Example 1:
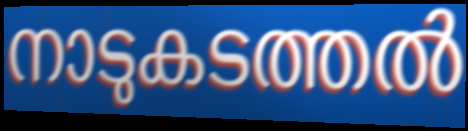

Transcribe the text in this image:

നാടുകടത്തൽ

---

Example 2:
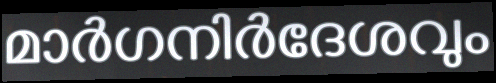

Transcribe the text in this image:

മാർഗനിർദേശവും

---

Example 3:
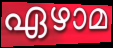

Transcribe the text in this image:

ഏഴാമ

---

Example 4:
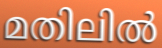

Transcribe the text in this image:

മതിലിൽ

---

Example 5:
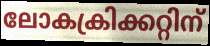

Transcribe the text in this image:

ലോകക്രിക്കറ്റിന്